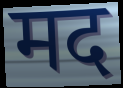
मद